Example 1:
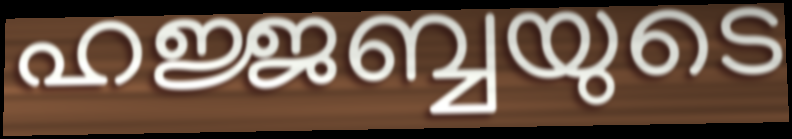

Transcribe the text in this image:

ഹജ്ജബ്ബയുടെ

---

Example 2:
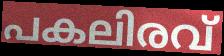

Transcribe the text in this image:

പകലിരവ്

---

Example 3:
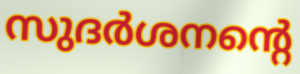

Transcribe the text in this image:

സുദർശനന്റെ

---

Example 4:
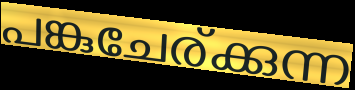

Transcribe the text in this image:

പങ്കുചേര്ക്കുന്ന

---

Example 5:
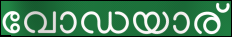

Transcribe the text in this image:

വോഡയാര്